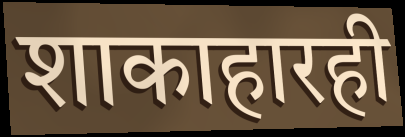
शाकाहारही